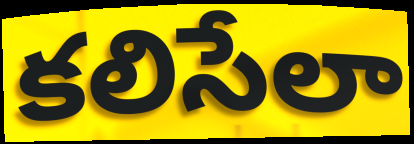
కలిసేలా